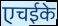
एचईके